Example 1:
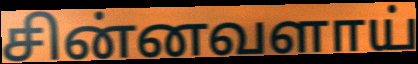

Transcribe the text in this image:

சின்னவளாய்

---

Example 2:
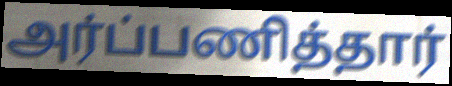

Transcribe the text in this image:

அர்ப்பணித்தார்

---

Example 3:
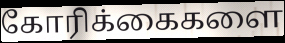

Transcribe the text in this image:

கோரிக்கைகளை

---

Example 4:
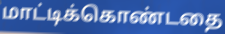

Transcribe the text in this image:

மாட்டிக்கொண்டதை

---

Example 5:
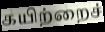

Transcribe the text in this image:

கயிற்றைச்